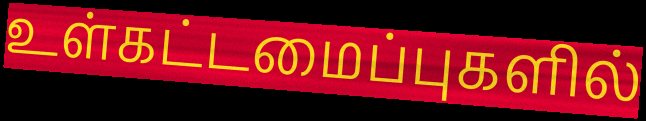
உள்கட்டமைப்புகளில்